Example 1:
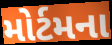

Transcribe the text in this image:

મોર્ટમના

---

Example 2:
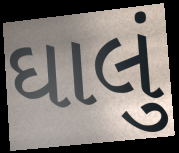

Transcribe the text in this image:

ઘાલું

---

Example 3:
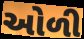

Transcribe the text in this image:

ઓળી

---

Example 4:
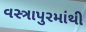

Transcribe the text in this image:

વસ્ત્રાપુરમાંથી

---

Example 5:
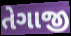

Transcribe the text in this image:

તેગાજી